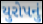
યુરોપનું